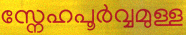
സ്നേഹപൂർവ്വമുള്ള